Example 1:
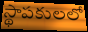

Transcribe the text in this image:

స్థాపకులలో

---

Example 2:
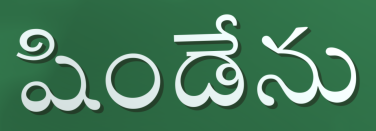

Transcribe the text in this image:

షిండేను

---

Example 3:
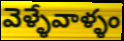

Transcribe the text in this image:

వెళ్ళేవాళ్ళం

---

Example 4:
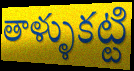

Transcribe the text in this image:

తాళ్ళుకట్టి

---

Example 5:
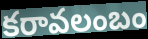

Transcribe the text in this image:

కరావలంబం